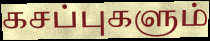
கசப்புகளும்